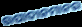
ଉପାଦାନମାନର